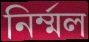
নির্ম্মল